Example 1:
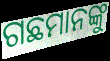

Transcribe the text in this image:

ଗଛମାନଙ୍କୁ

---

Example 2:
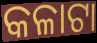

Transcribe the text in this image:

କଳାଟା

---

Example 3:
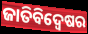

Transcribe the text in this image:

ଜାତିବିଦ୍ୱେଷର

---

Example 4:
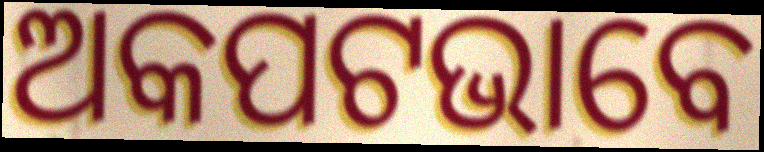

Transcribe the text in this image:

ଅକପଟଭାବେ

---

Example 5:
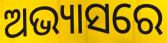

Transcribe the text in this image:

ଅଭ୍ୟାସରେ